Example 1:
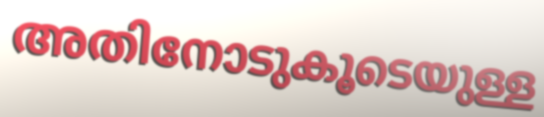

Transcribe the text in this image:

അതിനോടുകൂടെയുള്ള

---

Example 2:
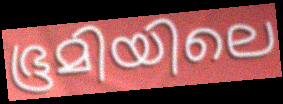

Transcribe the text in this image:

ഭൂമിയിലെ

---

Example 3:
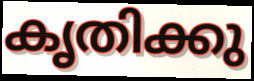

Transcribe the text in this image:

കൃതിക്കു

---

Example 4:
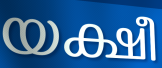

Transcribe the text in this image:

യക്ഷീ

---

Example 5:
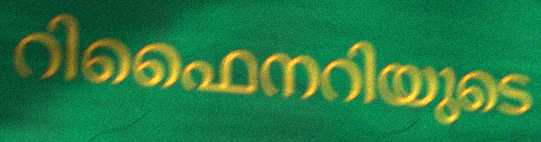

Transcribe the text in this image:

റിഫൈനറിയുടെ